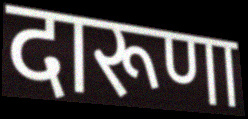
दारूणा